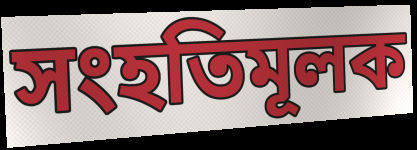
সংহতিমূলক